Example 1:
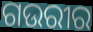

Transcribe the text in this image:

ଗଉରୀର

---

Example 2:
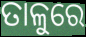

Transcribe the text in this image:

ତାଳୁରେ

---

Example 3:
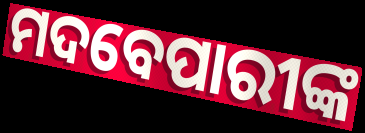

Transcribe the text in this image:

ମଦବେପାରୀଙ୍କ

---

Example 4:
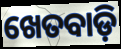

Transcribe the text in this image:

ଖେତବାଡ଼ି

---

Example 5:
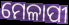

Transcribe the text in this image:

ମେଳାପୀ